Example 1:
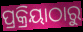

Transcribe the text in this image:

ପ୍ରକ୍ରିୟାଠାରୁ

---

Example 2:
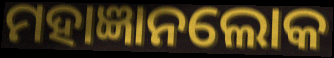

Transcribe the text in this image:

ମହାଜ୍ଞାନଲୋକ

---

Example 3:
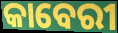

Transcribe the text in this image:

କାବେରୀ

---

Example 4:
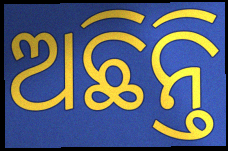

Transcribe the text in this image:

ଅଛିନ୍ତି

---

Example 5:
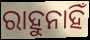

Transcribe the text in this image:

ରାହୁନାହିଁ